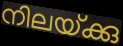
നിലയ്‌ക്കു